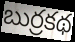
బుర్రకథ